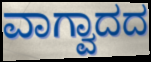
ವಾಗ್ವಾದದ